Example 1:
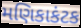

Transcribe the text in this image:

મણિકાકંટક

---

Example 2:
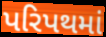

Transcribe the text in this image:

પરિપથમાં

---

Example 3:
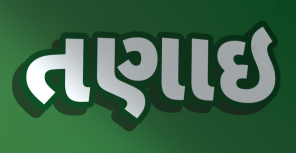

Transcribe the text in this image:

તણાઇ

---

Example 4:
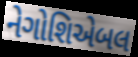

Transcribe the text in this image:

નેગોશિએબલ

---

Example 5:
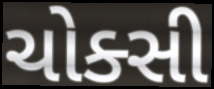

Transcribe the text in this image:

ચોક્સી